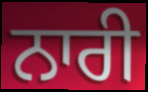
ਨਾਰੀ